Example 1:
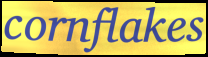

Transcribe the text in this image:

cornflakes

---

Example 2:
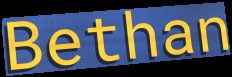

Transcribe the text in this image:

Bethan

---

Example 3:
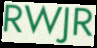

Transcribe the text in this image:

RWJR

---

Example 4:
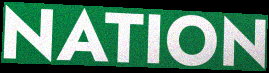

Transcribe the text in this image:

NATION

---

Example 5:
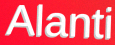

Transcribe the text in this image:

Alanti